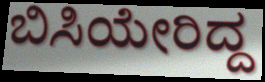
ಬಿಸಿಯೇರಿದ್ದ